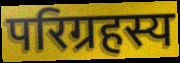
परिग्रहस्य